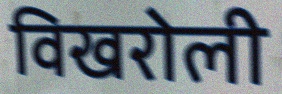
विखरोली